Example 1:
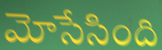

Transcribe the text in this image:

మోసేసింది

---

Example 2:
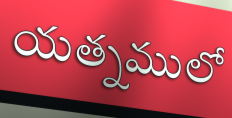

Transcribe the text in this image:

యత్నములో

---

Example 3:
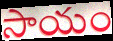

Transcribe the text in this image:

సాయం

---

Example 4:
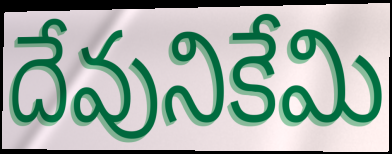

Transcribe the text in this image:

దేవునికేమి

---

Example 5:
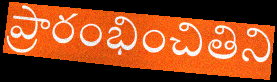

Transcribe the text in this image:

ప్రారంభించితిని